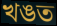
খঙত